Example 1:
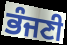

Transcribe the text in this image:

ਭੰਜਣੀ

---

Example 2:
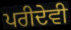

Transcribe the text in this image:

ਪਰੀਦੇਵੀ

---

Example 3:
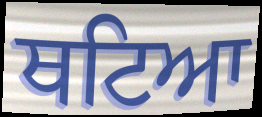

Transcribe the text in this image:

ਥਟਿਆ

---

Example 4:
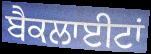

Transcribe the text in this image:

ਬੈਕਲਾਈਟਾਂ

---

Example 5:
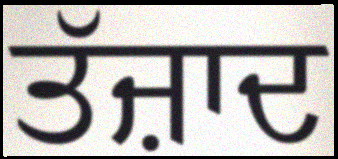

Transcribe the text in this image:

ਤੱਜ਼ਾਦ